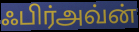
ஃபிர்அவ்ன்